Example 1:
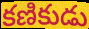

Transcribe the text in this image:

కణికుడు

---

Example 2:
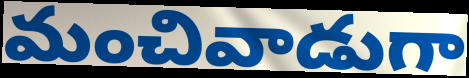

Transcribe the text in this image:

మంచివాడుగా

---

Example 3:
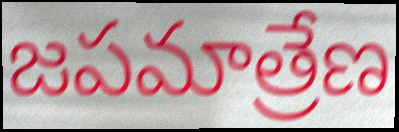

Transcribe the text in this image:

జపమాత్రేణ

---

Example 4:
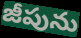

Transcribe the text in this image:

జీపును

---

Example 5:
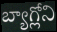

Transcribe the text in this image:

బ్యాగ్లోని